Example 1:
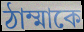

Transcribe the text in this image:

ঠাম্মাকে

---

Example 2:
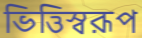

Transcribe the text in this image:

ভিত্তিস্বরূপ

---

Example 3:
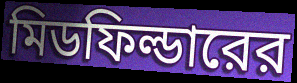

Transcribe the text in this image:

মিডফিল্ডারের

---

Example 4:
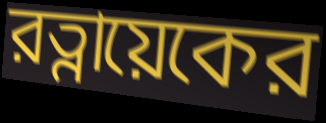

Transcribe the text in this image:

রত্নায়েকের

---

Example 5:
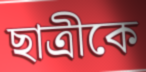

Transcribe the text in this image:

ছাত্রীকে